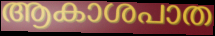
ആകാശപാത